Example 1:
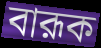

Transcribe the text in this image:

বারূক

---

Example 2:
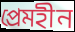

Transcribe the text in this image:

প্রেমহীন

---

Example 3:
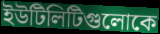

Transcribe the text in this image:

ইউটিলিটিগুলোকে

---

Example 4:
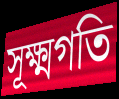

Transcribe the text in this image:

সূক্ষ্মগতি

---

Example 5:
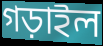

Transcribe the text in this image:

গড়াইল